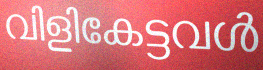
വിളികേട്ടവൾ